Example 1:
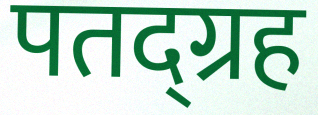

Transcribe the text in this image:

पतद्ग्रह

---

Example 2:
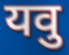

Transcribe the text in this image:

यवु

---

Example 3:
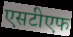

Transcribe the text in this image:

एसटीएफ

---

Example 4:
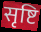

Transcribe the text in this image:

सृष्टि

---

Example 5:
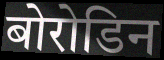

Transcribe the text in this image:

बोरोडिन